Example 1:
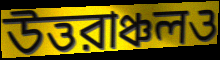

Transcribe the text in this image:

উত্তরাঞ্চলও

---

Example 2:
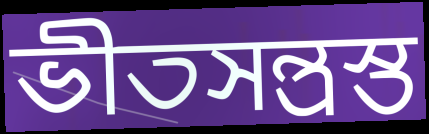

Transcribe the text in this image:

ভীতসন্ত্রস্ত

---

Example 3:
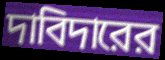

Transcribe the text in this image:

দাবিদারের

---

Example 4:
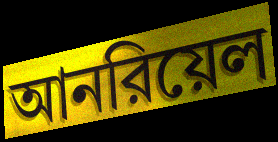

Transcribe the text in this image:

আনরিয়েল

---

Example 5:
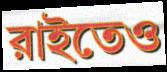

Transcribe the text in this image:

রাইতেও